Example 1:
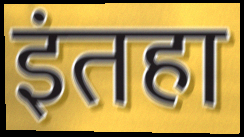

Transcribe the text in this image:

इंतहा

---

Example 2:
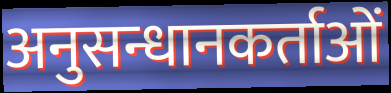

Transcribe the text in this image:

अनुसन्धानकर्ताओं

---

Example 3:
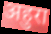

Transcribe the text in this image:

अहुरा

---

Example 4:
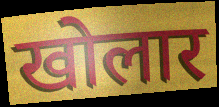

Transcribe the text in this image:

खोलार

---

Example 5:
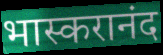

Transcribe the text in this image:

भास्करानंद